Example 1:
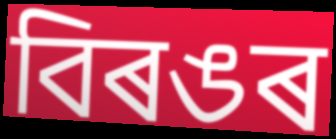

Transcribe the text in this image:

বিৰঙৰ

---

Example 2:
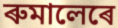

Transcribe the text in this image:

ৰুমালেৰে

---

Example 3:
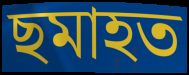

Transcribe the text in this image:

ছমাহত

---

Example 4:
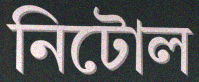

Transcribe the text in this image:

নিটোল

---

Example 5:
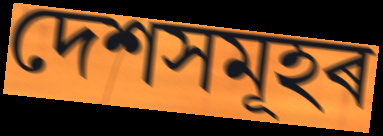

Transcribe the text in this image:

দেশসমূহৰ